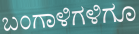
ಬಂಗಾಳಿಗಳಿಗೂ